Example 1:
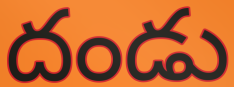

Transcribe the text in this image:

దండు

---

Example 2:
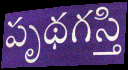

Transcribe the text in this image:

పృథగస్తి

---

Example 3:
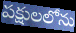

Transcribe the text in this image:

పక్షులలోను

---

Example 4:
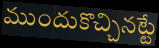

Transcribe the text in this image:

ముందుకొచ్చినట్టే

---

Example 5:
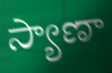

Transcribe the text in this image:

స్యాణా